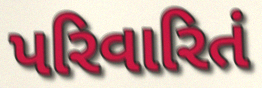
પરિવારિતં